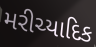
મરીચ્યાદિક